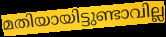
മതിയായിട്ടുണ്ടാവില്ല